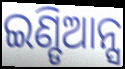
ଇଣ୍ଡିଆନ୍ସ